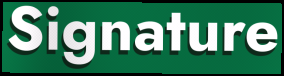
Signature